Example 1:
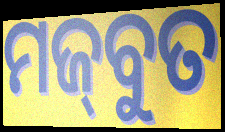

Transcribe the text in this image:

ମଜ୍‌ବୁତ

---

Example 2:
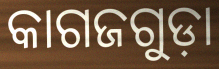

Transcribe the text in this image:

କାଗଜଗୁଡ଼ା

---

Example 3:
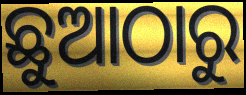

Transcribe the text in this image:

ଛୁଆଠାରୁ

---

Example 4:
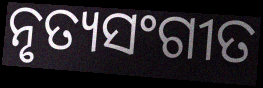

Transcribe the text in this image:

ନୃତ୍ୟସଂଗୀତ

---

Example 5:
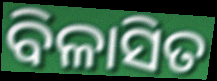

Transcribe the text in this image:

ବିଳାସିତ